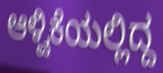
ಆಳ್ವಿಕೆಯಲ್ಲಿದ್ದ